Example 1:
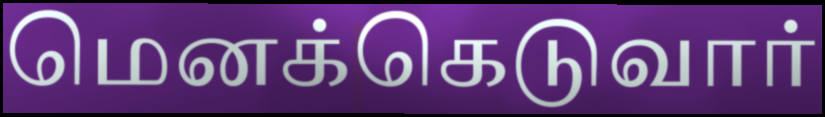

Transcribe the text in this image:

மெனக்கெடுவார்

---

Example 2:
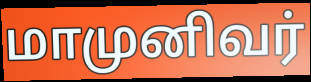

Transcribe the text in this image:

மாமுனிவர்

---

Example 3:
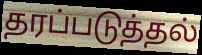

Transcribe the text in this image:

தரப்படுத்தல்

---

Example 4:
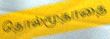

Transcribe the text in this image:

தொல்மூதாதை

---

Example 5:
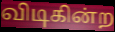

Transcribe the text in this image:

விடிகின்ற